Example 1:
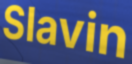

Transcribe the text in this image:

Slavin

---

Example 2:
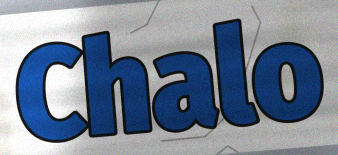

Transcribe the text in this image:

Chalo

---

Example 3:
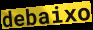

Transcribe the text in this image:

debaixo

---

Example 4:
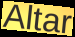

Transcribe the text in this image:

Altar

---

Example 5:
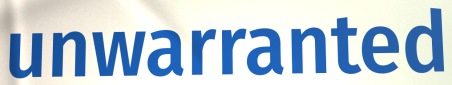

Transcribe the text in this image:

unwarranted